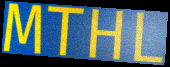
MTHL